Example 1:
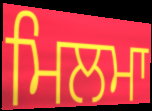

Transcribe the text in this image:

ਮਿਲਮਾ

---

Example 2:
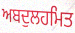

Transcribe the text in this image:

ਅਬਦੁਲਹਮਿਤ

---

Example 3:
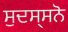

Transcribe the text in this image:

ਸੁਦਸ੍ਸਨੋ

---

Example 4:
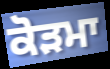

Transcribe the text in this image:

ਕੋੜਮਾ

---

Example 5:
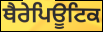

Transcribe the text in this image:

ਥੈਰੇਪਿਊਟਿਕ